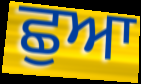
ਛੁਆ